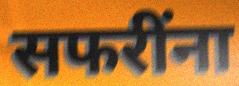
सफरींना